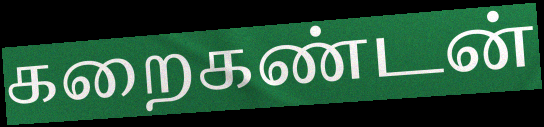
கறைகண்டன்